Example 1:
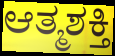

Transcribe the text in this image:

ಆತ್ಮಶಕ್ತಿ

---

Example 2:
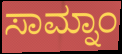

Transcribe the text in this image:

ಸಾಮ್ನಾಂ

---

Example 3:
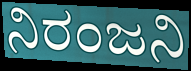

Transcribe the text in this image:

ನಿರಂಜನಿ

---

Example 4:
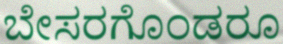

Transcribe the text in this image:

ಬೇಸರಗೊಂಡರೂ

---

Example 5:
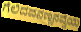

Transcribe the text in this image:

ಗೆಲಿದವನಣ್ಣನವ್ವೆಯ